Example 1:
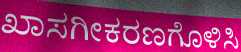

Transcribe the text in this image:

ಖಾಸಗೀಕರಣಗೊಳಿಸಿ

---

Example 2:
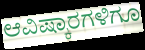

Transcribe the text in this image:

ಆವಿಷ್ಕಾರಗಳಿಗೂ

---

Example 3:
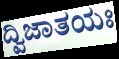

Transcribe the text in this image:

ದ್ವಿಜಾತಯಃ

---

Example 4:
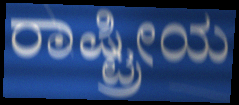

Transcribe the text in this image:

ರಾಷ್ಟ್ರೀಯ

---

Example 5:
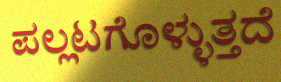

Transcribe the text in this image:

ಪಲ್ಲಟಗೊಳ್ಳುತ್ತದೆ